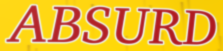
ABSURD